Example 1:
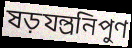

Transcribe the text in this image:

ষড়যন্ত্রনিপুণ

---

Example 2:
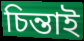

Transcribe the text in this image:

চিন্তাই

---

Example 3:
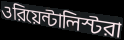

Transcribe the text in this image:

ওরিয়েন্টালিস্টরা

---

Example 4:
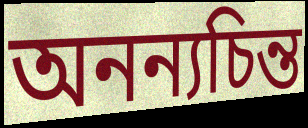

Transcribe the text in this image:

অনন্যচিন্ত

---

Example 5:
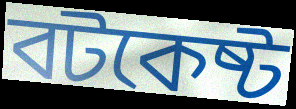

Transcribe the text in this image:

বটকেষ্ট